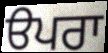
ੳਪਰਾ